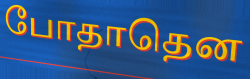
போதாதென